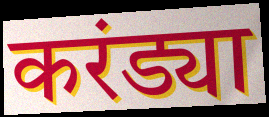
करंड्या